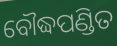
ବୌଦ୍ଧପଣ୍ଡିତ